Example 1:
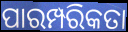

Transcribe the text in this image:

ପାରମ୍ପରିକତା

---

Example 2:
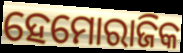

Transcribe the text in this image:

ହେମୋରାଜିକ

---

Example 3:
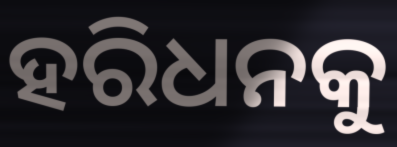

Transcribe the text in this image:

ହରିଧନକୁ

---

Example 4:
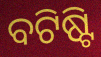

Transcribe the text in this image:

ବଟିଷ୍ଟି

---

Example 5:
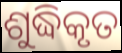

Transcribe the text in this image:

ଶୁଦ୍ଧିକୃତ